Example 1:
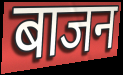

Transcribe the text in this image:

बाजन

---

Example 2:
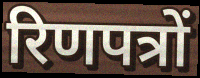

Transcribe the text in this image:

रिणपत्रों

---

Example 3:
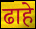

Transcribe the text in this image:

ढाहे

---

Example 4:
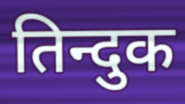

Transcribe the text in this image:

तिन्दुक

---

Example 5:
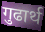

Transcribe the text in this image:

गुढार्थ